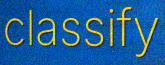
classify